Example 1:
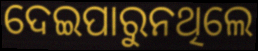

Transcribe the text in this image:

ଦେଇପାରୁନଥିଲେ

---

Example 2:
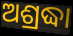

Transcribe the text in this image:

ଅଶ୍ରଦ୍ଧା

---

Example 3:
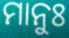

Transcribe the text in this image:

ମାନୁଃ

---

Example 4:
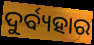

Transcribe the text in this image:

ଦୁର୍ବ୍ୟହାର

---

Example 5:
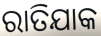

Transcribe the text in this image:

ରାତିଯାକ